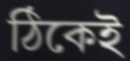
ঠিকেই